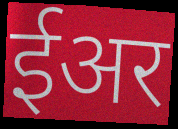
ईअर